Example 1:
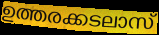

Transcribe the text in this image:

ഉത്തരക്കടലാസ്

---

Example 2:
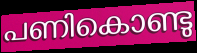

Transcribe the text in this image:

പണികൊണ്ടു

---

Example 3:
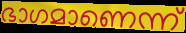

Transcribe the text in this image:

ഭാഗമാണെന്ന്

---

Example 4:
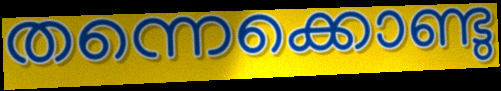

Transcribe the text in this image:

തന്നെക്കൊണ്ടു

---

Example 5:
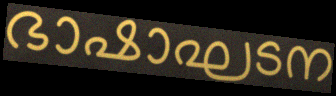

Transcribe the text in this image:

ഭാഷാഘടന